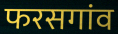
फरसगांव